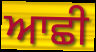
ਆਛੀ